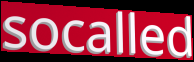
socalled